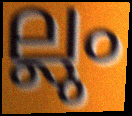
ല്ലും